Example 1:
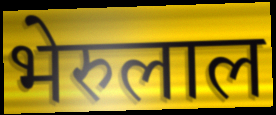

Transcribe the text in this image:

भेरुलाल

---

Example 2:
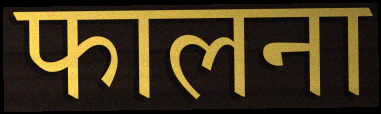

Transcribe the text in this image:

फालना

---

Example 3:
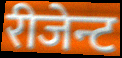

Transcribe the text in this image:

रीजेन्ट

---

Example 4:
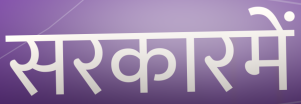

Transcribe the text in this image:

सरकारमें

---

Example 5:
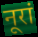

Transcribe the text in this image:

नूरां